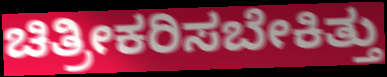
ಚಿತ್ರೀಕರಿಸಬೇಕಿತ್ತು